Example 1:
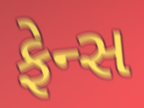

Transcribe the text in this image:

ફેન્સ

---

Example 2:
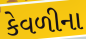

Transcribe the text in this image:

કેવળીના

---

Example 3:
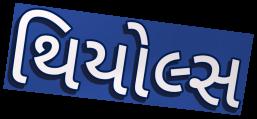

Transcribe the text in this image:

થિયોલ્સ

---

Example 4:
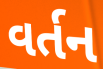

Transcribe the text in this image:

વર્તન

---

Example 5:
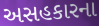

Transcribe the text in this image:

અસહકારના